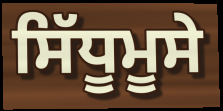
ਸਿੱਧੂਮੂਸੇ